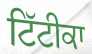
ਟਿੱਟੀਕਾ